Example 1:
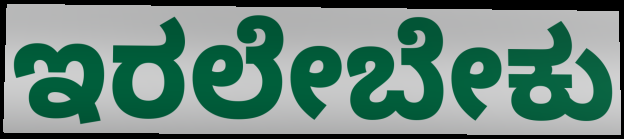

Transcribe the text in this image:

ಇರಲೇಬೇಕು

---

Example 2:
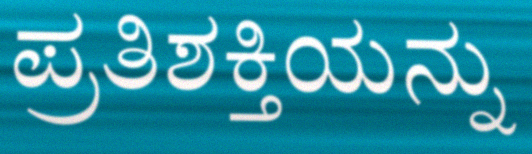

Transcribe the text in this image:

ಪ್ರತಿಶಕ್ತಿಯನ್ನು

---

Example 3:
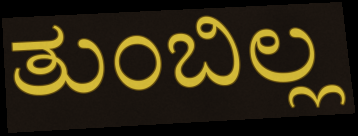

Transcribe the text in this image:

ತುಂಬಿಲ್ಲ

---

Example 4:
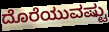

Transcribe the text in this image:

ದೊರೆಯುವಷ್ಟು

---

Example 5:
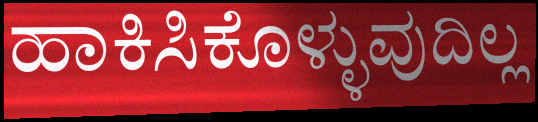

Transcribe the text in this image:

ಹಾಕಿಸಿಕೊಳ್ಳುವುದಿಲ್ಲ